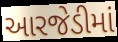
આરજેડીમાં